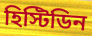
হিস্টিডিন